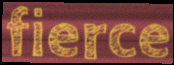
fierce